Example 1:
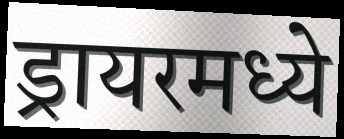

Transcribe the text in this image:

ड्रायरमध्ये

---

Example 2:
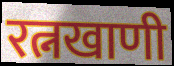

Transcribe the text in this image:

रत्नखाणी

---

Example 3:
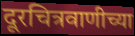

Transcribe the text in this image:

दूरचित्रवाणीच्या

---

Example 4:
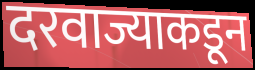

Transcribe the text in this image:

दरवाज्याकडून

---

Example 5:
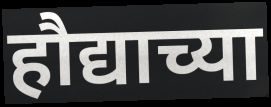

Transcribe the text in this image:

हौद्याच्या